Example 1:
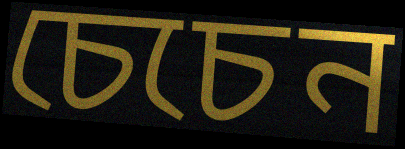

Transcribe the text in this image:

চেচেন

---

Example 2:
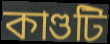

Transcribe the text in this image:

কাণ্ডটি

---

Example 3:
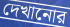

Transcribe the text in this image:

দেখানোর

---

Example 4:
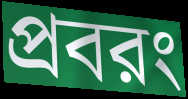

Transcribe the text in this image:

প্রবরং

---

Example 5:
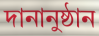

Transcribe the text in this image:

দানানুষ্ঠান